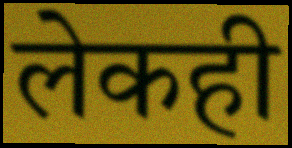
लेकही